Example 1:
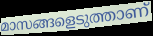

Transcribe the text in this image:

മാസങ്ങളെടുത്താണ്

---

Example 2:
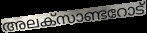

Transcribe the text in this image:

അലക്സാണ്ടറോട്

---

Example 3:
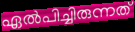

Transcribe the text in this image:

ഏൽപിച്ചിരുന്നത്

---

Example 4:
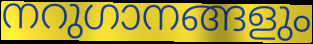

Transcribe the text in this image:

നറുഗാനങ്ങളും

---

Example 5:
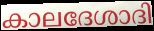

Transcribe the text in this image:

കാലദേശാദി